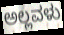
ಅಲ್ಲವಳು